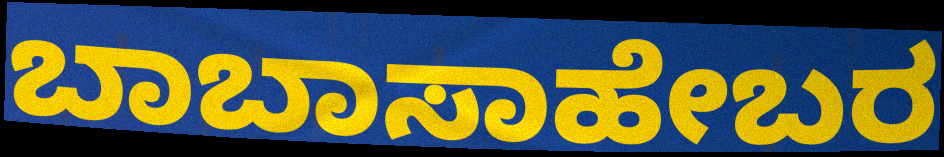
ಬಾಬಾಸಾಹೇಬರ